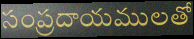
సంప్రదాయములతో